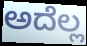
ಅದೆಲ್ಲ